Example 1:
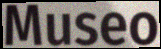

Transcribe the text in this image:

Museo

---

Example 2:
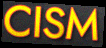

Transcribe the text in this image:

CISM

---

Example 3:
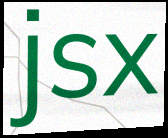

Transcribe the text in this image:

jsx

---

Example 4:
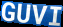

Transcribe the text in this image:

GUVI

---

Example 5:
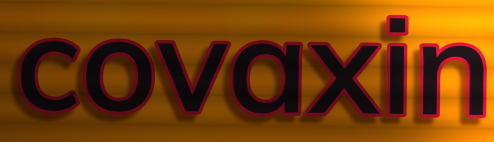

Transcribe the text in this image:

covaxin